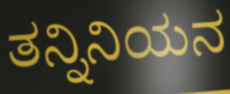
ತನ್ನಿನಿಯನ